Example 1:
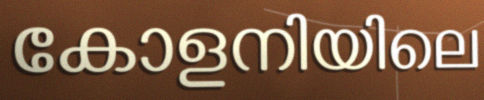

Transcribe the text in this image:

കോളനിയിലെ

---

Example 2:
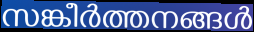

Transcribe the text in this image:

സങ്കീർത്തനങ്ങൾ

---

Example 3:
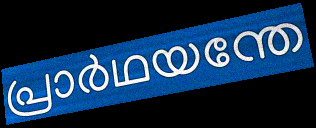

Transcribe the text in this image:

പ്രാർഥയന്തേ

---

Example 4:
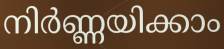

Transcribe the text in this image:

നിർണ്ണയിക്കാം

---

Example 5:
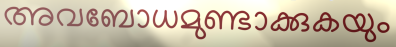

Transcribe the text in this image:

അവബോധമുണ്ടാക്കുകയും